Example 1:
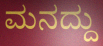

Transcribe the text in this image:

ಮನದ್ದು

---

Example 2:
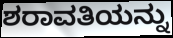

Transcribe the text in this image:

ಶರಾವತಿಯನ್ನು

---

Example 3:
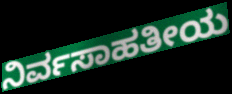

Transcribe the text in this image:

ನಿರ್ವಸಾಹತೀಯ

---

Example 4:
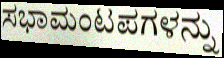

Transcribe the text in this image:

ಸಭಾಮಂಟಪಗಳನ್ನು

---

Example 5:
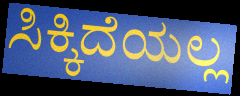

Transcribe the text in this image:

ಸಿಕ್ಕಿದೆಯಲ್ಲ